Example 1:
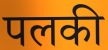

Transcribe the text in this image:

पलकी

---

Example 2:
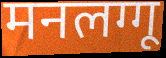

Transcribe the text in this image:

मनलग्गू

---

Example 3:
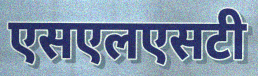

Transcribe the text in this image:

एसएलएसटी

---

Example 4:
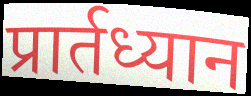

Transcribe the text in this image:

प्रार्तध्यान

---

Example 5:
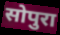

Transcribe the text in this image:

सोपुरा